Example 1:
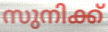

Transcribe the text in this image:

സുനിക്ക്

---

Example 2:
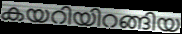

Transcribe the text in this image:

കയറിയിറങ്ങിയ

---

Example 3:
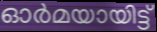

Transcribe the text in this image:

ഓർമയായിട്ട്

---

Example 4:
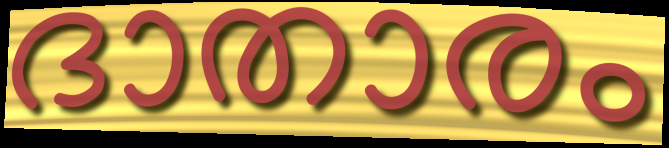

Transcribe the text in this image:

ദാതാരം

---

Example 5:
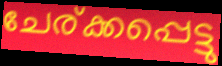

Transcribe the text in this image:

ചേര്ക്കപ്പെട്ടു